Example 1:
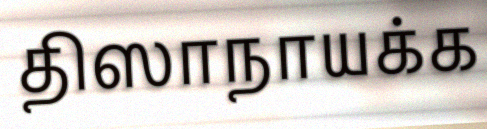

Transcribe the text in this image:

திஸாநாயக்க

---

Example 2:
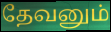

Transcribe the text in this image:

தேவனும்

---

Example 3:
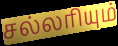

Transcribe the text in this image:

சல்லரியும்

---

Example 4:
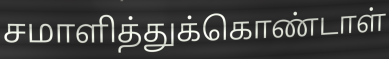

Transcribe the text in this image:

சமாளித்துக்கொண்டாள்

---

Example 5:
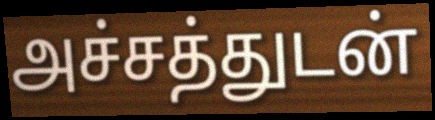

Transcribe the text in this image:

அச்சத்துடன்